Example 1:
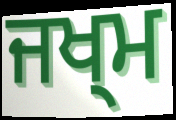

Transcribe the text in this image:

ਜਖ੍ਮ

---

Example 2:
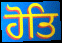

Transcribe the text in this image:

ਹੋਤਿ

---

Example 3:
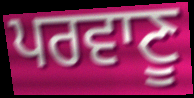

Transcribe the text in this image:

ਪਰਵਾਣੂ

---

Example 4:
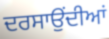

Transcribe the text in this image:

ਦਰਸਾਉਂਦੀਆਂ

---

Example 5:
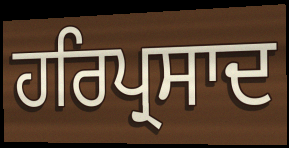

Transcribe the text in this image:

ਹਰਿਪ੍ਰਸਾਦ